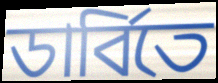
ডার্বিতে